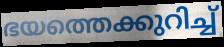
ഭയത്തെക്കുറിച്ച്